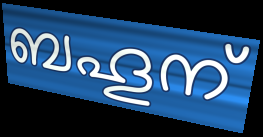
ബഹൂന്